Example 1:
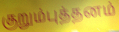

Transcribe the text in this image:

குறும்புத்தனம்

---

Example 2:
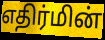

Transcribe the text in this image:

எதிர்மின்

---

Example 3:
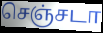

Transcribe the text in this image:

செஞ்சடா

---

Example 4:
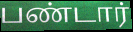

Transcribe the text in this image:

பண்டார்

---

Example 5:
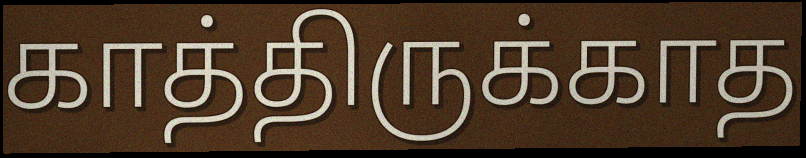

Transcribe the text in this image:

காத்திருக்காத